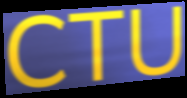
CTU